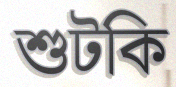
শুটকি